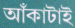
আঁকাটাই